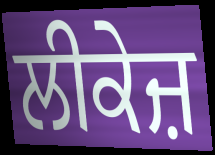
ਲੀਕੇਜ਼